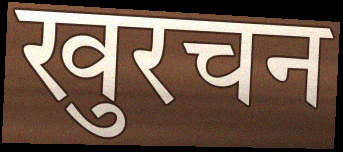
खुरचन